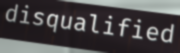
disqualified